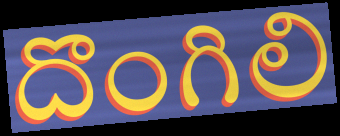
దొంగిలి